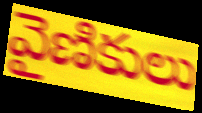
వైణికులు